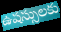
ఉషస్సులకు